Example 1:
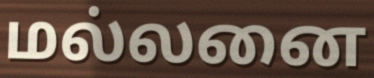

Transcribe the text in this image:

மல்லனை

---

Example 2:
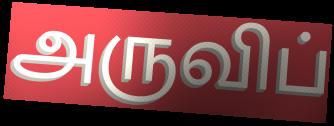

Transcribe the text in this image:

அருவிப்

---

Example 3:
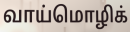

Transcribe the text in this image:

வாய்மொழிக்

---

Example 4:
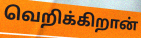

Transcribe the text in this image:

வெறிக்கிறான்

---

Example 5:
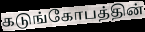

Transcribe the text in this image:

கடுங்கோபத்தின்